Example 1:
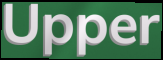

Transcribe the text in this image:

Upper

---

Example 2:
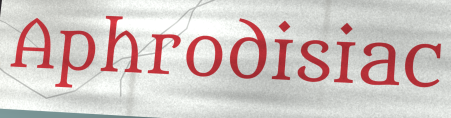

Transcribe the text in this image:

Aphrodisiac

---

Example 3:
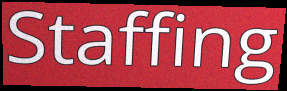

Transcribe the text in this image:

Staffing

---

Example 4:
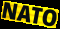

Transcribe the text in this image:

NATO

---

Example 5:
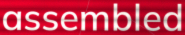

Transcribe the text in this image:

assembled